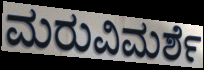
ಮರುವಿಮರ್ಶೆ